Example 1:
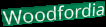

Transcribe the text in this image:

Woodfordia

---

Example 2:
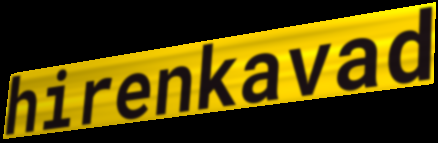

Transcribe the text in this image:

hirenkavad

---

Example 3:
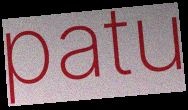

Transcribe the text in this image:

patu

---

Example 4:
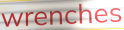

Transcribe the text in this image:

wrenches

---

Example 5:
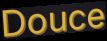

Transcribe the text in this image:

Douce